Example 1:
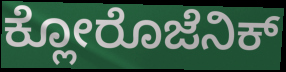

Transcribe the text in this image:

ಕ್ಲೋರೊಜೆನಿಕ್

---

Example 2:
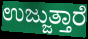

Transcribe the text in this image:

ಉಜ್ಜುತ್ತಾರೆ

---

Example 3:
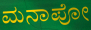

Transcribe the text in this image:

ಮನಾಪೋ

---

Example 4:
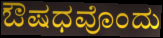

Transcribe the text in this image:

ಔಷಧವೊಂದು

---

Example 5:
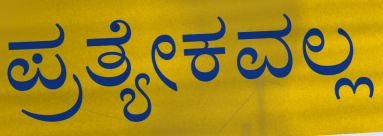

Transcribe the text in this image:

ಪ್ರತ್ಯೇಕವಲ್ಲ